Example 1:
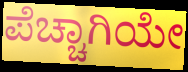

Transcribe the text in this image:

ಪೆಚ್ಚಾಗಿಯೇ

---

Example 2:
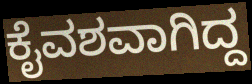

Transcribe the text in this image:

ಕೈವಶವಾಗಿದ್ದ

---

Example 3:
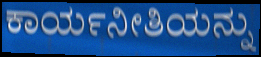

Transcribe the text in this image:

ಕಾರ್ಯನೀತಿಯನ್ನು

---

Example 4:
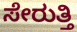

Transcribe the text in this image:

ಸೇರುತ್ತಿ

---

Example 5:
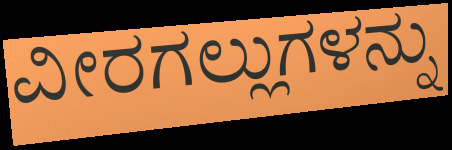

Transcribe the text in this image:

ವೀರಗಲ್ಲುಗಳನ್ನು